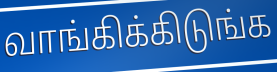
வாங்கிக்கிடுங்க